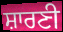
ਸ਼ਾਰਣੀ